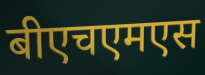
बीएचएमएस